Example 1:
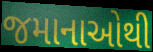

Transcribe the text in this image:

જમાનાઓથી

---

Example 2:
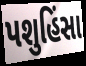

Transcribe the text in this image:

પશુહિંસા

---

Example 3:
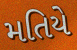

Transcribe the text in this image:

મતિયે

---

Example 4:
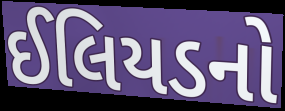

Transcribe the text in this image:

ઈલિયડનો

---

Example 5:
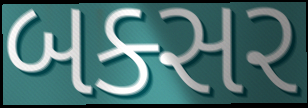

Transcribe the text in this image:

બક્સર